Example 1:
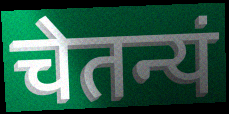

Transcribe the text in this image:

चेतन्यं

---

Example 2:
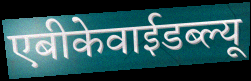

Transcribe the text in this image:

एबीकेवाईडब्ल्यू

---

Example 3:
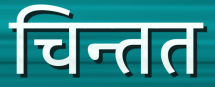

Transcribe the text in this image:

चिन्तत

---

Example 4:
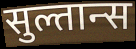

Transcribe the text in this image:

सुल्तान्स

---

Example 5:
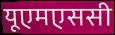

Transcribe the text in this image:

यूएमएससी